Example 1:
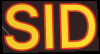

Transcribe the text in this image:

SID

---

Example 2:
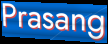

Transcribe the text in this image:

Prasang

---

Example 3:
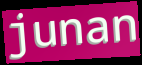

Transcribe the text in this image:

junan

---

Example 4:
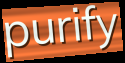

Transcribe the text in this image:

purify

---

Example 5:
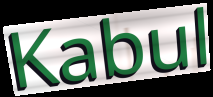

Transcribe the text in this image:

Kabul